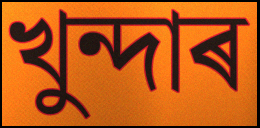
খুন্দাৰ